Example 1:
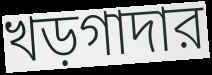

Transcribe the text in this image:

খড়গাদার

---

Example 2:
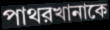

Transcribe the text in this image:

পাথরখানাকে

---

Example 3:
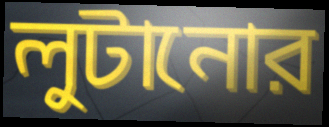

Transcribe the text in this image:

লুটানোর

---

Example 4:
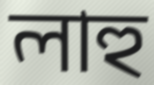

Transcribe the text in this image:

লাহু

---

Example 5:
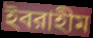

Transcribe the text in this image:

ইবরাহীম